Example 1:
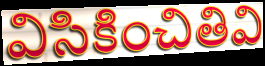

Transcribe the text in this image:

విసికించితివి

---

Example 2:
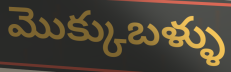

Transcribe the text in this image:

మొక్కుబళ్ళు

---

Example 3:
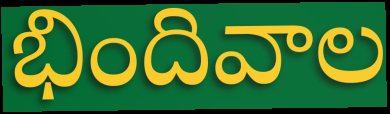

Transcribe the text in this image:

భిందివాల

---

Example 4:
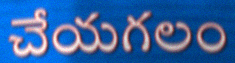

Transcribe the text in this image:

చేయగలం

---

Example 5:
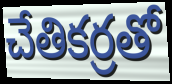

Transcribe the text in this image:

చేతికర్రతో